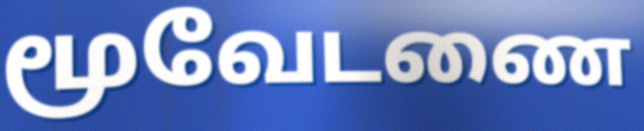
மூவேடணை